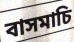
বাসমাচি